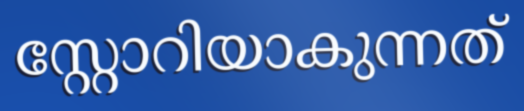
സ്റ്റോറിയാകുന്നത്